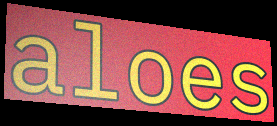
aloes